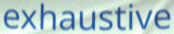
exhaustive